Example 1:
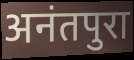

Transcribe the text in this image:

अनंतपुरा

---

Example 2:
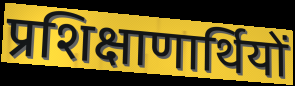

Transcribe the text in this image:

प्रशिक्षाणार्थियों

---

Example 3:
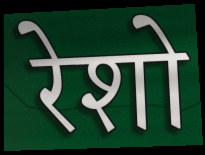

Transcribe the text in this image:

रेशो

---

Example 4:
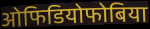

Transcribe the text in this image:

ओफिडियोफोबिया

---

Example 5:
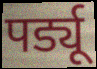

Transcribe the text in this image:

पर्ड्यू